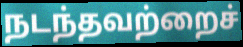
நடந்தவற்றைச்